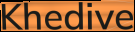
Khedive